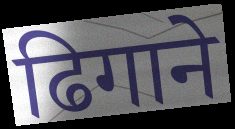
ढिगाने